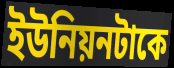
ইউনিয়নটাকে